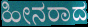
ಹೀನರಾದ